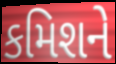
કમિશને